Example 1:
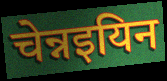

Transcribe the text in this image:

चेन्नइयिन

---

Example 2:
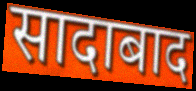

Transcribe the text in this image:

सादाबाद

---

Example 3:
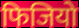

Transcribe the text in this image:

फिजियो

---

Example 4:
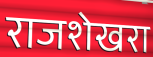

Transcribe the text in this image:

राजशेखरा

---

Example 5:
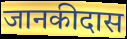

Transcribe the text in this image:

जानकीदास